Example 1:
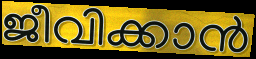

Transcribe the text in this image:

ജീവിക്കാൻ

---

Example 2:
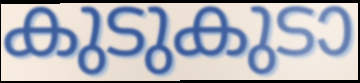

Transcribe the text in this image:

കുടുകുടാ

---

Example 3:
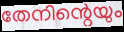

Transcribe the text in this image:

തേനിന്റെയും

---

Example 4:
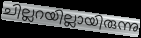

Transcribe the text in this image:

ചില്ലറയില്ലായിരുന്നു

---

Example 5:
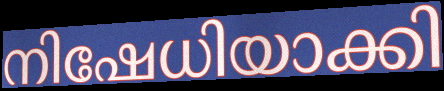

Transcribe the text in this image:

നിഷേധിയാക്കി